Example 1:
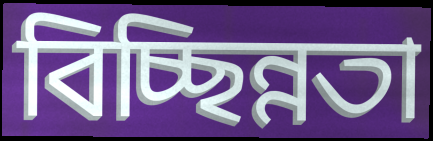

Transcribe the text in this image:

বিচ্ছিন্নতা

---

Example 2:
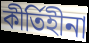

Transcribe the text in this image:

কীর্তিহীনা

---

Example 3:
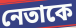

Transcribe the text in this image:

নেতাকে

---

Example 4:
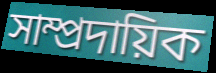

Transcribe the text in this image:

সাম্প্রদায়িক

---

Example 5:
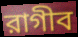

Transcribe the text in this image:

রাগীব